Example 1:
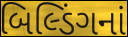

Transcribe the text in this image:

બિલ્ડિંગનાં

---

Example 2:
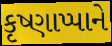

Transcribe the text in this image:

કૃષ્ણાપ્પાને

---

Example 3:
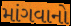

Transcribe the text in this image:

માંગવાનો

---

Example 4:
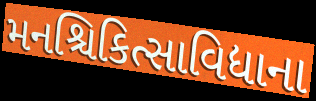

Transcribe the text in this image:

મનશ્ચિકિત્સાવિદ્યાના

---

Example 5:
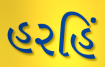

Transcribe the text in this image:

હરહિં